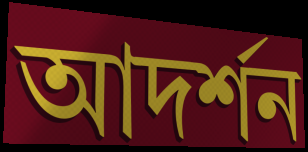
আদর্শন